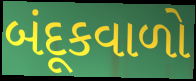
બંદૂકવાળો